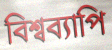
বিশ্বব্যাপি